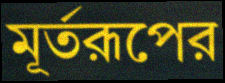
মূর্তরূপের